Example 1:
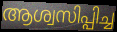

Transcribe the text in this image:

ആശ്വസിപ്പിച്ച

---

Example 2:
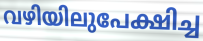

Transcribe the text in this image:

വഴിയിലുപേക്ഷിച്ച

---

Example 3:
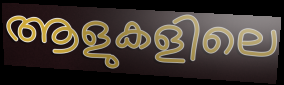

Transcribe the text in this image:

ആളുകളിലെ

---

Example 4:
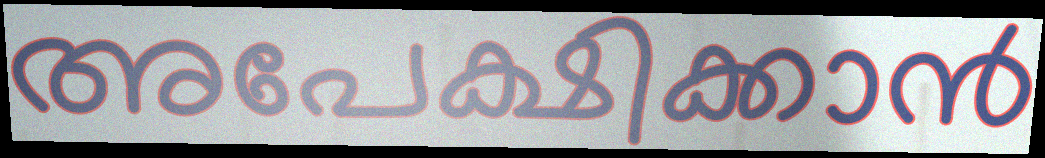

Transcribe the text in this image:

അപേക്ഷിക്കാൻ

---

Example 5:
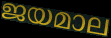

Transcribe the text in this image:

ജയമാല